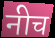
नीच